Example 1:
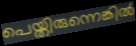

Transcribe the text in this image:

പെയ്തിരുന്നെങ്കിൽ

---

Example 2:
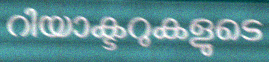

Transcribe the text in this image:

റിയാക്ടറുകളുടെ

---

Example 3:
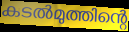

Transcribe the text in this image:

കടൽമുത്തിന്റെ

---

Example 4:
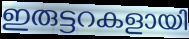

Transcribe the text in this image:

ഇരുട്ടറകളായി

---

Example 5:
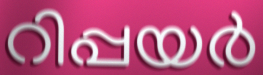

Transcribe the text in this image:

റിപ്പയർ